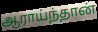
ஆராய்ந்தான்